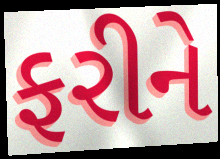
ફરીને